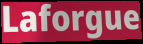
Laforgue